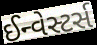
ઈન્વેસ્ટર્સ